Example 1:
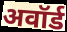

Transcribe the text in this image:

अवॉर्ड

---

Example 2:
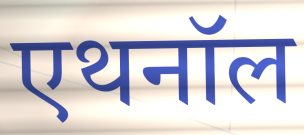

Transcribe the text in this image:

एथनॉल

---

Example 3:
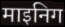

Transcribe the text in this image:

माइनिग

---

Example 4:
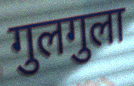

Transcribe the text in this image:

गुलगुला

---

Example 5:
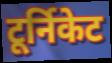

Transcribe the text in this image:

टूर्निकेट